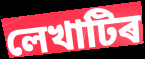
লেখাটিৰ